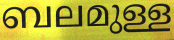
ബലമുള്ള